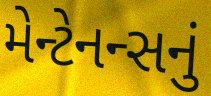
મેન્ટેનન્સનું